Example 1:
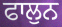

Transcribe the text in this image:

ਫਾਲੁਨ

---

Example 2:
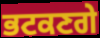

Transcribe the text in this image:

ਭਟਕਣਗੇ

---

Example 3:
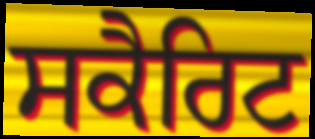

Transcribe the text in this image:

ਸਕੈਰਿਟ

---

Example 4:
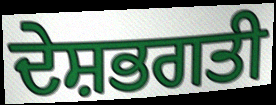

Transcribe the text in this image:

ਦੇਸ਼ਭਗਤੀ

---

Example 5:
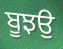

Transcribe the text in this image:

ਬੂਝਉ